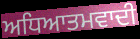
ਅਧਿਆਤਮਵਾਦੀ